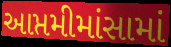
આપ્તમીમાંસામાં